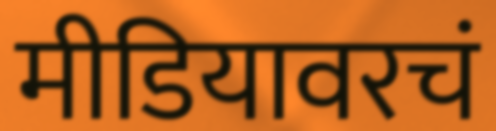
मीडियावरचं